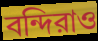
বন্দিরাও